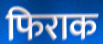
फिराक